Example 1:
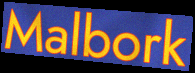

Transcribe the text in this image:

Malbork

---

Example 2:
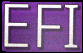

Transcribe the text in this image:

EFI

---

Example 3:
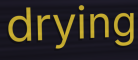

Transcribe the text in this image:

drying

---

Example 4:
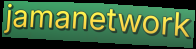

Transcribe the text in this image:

jamanetwork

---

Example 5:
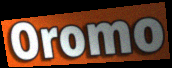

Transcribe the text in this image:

Oromo